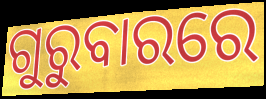
ଗୁରୁବାରରେ